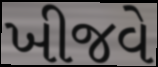
ખીજવે